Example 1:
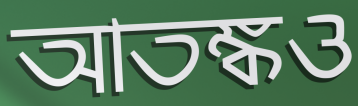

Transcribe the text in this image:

আতঙ্কও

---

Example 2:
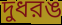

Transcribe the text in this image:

দুধরঙ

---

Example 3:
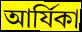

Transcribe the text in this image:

আর্যিকা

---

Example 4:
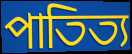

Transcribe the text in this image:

পাতিত্য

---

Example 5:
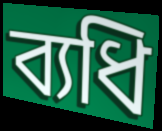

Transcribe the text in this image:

ব্যধি